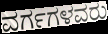
ವರ್ಗಗಳವರು